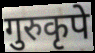
गुरुकृपे